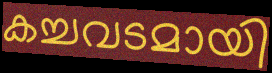
കച്ചവടമായി